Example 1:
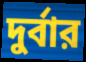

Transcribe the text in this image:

দুর্বার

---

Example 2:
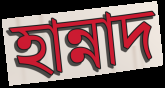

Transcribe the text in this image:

হান্নাদ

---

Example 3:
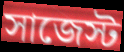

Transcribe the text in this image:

সাজেস্ট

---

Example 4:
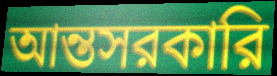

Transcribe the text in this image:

আন্তসরকারি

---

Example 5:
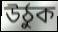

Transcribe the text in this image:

উঠুক